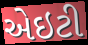
એઇટી